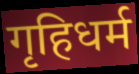
गृहिधर्म